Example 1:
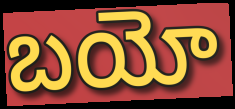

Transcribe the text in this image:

బయో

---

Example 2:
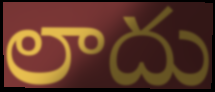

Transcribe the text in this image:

లాదు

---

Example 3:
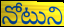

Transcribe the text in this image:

నోటుని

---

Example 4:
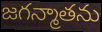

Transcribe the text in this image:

జగన్మాతను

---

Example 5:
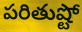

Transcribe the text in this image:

పరితుష్టో